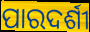
ପାରଦର୍ଶୀ